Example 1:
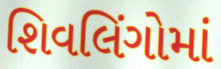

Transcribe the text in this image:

શિવલિંગોમાં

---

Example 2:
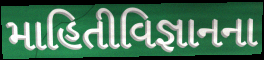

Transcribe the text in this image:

માહિતીવિજ્ઞાનના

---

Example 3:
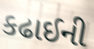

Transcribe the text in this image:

કઢાઈની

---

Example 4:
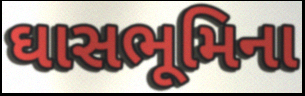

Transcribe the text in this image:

ઘાસભૂમિના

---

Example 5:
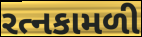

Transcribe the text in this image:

રત્નકામળી